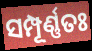
ସମ୍ପୂର୍ଣ୍ଣତଃ